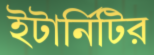
ইটার্নিটির